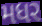
મધર